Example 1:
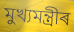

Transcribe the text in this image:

মুখ্যমন্ত্ৰীৰ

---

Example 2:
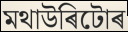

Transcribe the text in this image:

মথাউৰিটোৰ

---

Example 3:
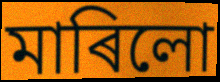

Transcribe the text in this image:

মাৰিলো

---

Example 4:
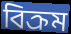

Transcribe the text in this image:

বিক্ৰম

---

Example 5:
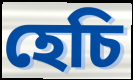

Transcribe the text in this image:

হেচি